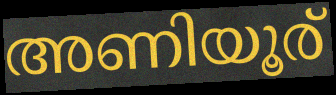
അണിയൂര്